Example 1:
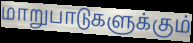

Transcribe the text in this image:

மாறுபாடுகளுக்கும்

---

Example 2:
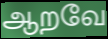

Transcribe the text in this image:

ஆறவே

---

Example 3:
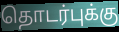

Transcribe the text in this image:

தொடர்புக்கு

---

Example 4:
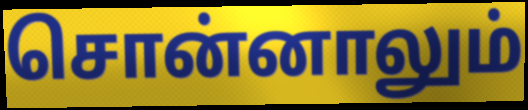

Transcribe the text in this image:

சொன்னாலும்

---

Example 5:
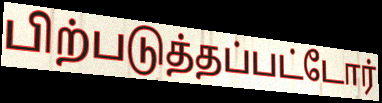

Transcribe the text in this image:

பிற்படுத்தப்பட்டோர்